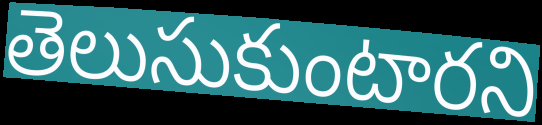
తెలుసుకుంటారని